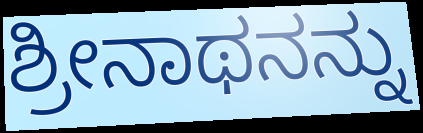
ಶ್ರೀನಾಥನನ್ನು